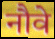
नौवे